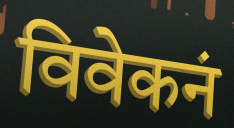
विवेकनं